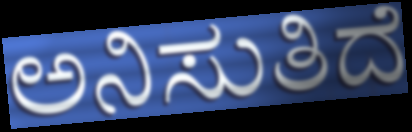
ಅನಿಸುತಿದೆ